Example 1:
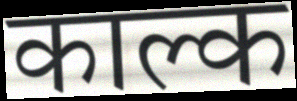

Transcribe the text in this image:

काल्क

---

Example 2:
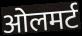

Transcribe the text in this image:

ओलमर्ट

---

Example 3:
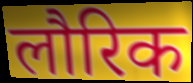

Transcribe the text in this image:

लौरिक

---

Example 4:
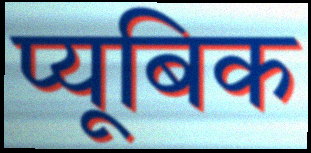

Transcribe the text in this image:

प्यूबिक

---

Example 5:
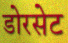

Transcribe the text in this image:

डोरसेट